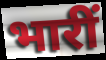
भारीं